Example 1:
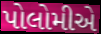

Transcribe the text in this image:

પોલોમીએ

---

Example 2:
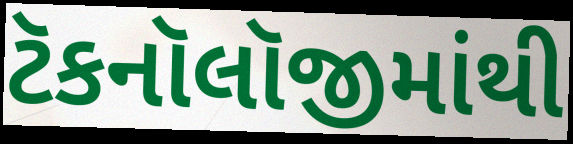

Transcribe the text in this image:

ટૅકનૉલૉજીમાંથી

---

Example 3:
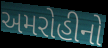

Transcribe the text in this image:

અમરોહીનો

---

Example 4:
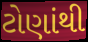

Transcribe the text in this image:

ટોણાંથી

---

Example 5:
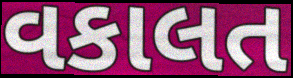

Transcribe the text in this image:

વકાલત